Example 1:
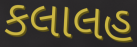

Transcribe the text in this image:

કલાલહ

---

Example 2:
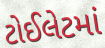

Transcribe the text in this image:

ટોઈલેટમાં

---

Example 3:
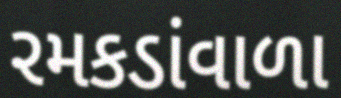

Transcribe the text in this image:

રમકડાંવાળા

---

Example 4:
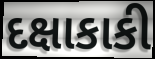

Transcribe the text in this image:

દક્ષાકાકી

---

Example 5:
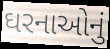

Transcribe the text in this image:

ઘરનાઓનું